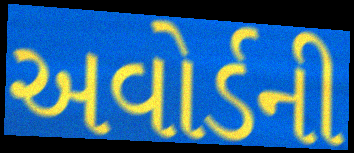
અવોર્ડની